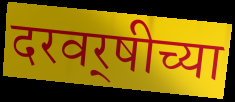
दरवर्षीच्या